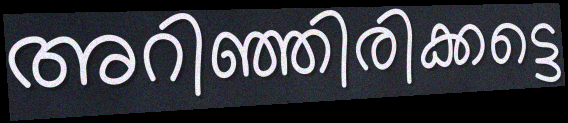
അറിഞ്ഞിരിക്കട്ടെ